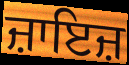
ਜ਼ਾਇਜ਼